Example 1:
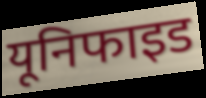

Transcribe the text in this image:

यूनिफाइड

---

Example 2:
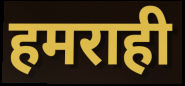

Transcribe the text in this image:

हमराही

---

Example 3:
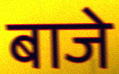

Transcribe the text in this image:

बाजे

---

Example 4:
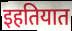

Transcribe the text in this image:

इहतियात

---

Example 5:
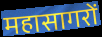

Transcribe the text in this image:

महासागरों